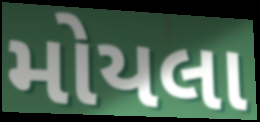
મોયલા